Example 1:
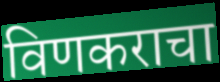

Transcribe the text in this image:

विणकराचा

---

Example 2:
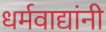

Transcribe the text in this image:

धर्मवाद्यांनी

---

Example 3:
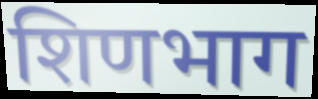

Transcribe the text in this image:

शिणभाग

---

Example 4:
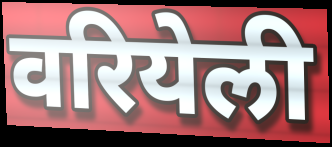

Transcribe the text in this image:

वरियेली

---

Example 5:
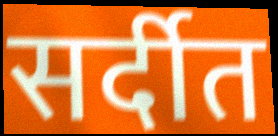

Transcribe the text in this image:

सर्दीत